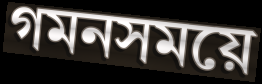
গমনসময়ে